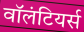
वॉलंटियर्स